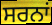
ਸਰਨਾਂ